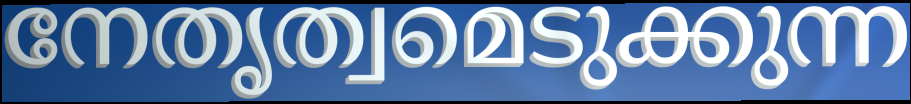
നേതൃത്വമെടുക്കുന്ന